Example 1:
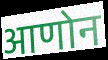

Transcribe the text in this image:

आणोन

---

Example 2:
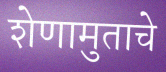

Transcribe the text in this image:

शेणामुताचे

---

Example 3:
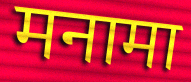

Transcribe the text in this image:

मनामा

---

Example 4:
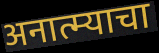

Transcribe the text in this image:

अनात्म्याचा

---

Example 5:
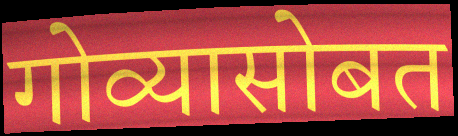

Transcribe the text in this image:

गोव्यासोबत